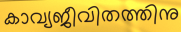
കാവ്യജീവിതത്തിനു